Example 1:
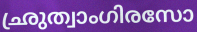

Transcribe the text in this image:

ഛ്രുത്വാംഗിരസോ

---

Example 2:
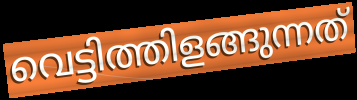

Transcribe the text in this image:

വെട്ടിത്തിളങ്ങുന്നത്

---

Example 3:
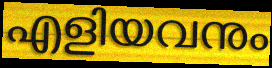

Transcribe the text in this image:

എളിയവനും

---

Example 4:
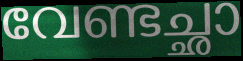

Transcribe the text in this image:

വേണ്ടച്ഛാ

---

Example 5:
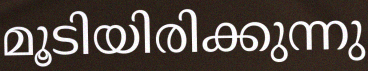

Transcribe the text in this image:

മൂടിയിരിക്കുന്നു